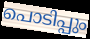
പൊടിപ്പും